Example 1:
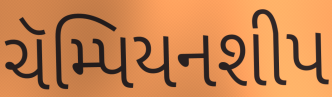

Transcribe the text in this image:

ચૅમ્પિયનશીપ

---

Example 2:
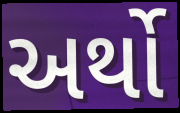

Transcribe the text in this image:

અર્થો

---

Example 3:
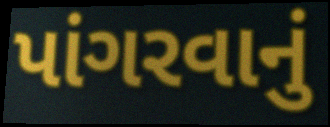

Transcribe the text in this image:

પાંગરવાનું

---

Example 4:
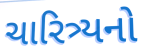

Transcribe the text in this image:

ચારિત્ર્યનો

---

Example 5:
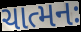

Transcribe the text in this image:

ચાત્મનઃ